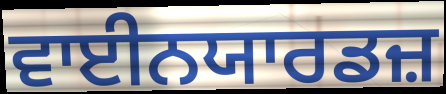
ਵਾਈਨਯਾਰਡਜ਼